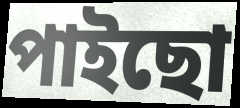
পাইছো